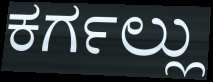
ಕರ್ಗಲ್ಲು